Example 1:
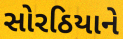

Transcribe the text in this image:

સોરઠિયાને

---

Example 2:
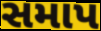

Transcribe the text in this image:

સમાપ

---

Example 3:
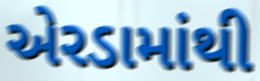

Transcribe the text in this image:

એરડામાંથી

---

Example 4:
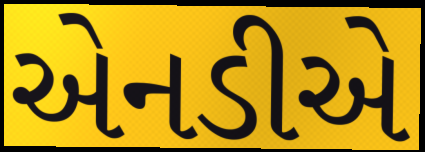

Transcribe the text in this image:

એનડીએ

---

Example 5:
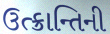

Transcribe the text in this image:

ઉત્ક્રાન્તિની